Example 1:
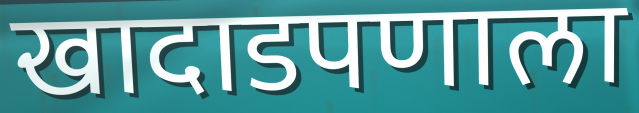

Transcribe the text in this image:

खादाडपणाला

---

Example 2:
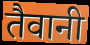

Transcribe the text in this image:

तैवानी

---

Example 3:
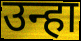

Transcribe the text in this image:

उन्हा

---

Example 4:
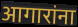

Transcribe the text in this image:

आगारांना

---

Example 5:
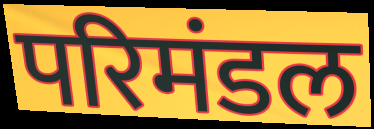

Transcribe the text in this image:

परिमंडल